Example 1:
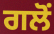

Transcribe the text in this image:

ਗਲੋਂ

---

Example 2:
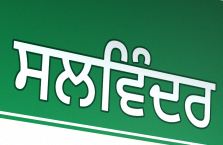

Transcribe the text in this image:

ਸਲਵਿੰਦਰ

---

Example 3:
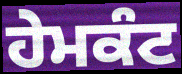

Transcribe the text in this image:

ਹੇਮਕੰਟ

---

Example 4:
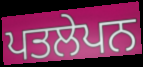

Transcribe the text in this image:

ਪਤਲੇਪਨ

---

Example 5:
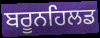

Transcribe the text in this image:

ਬਰੂਨਹਿਲਡ